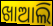
ଖାଆଲି